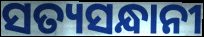
ସତ୍ୟସନ୍ଧାନୀ